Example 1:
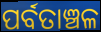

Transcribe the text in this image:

ପର୍ବତାଞ୍ଚଳ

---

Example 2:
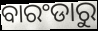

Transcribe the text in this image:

ବାରଂଡାରୁ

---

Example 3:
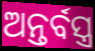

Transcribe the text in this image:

ଅନ୍ତର୍ବସ୍ତ୍ର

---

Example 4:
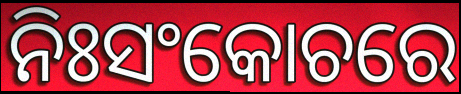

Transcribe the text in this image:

ନିଃସଂକୋଚରେ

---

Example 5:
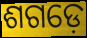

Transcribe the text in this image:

ଶଗଡ଼େ